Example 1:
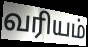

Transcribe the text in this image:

வரியம்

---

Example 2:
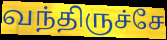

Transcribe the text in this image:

வந்திருச்சே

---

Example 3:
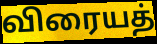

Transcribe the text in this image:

விரையத்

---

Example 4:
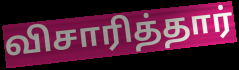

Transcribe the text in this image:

விசாரித்தார்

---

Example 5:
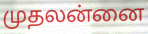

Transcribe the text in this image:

முதலன்னை